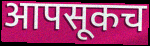
आपसूकच